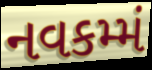
નવકમ્મં